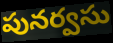
పునర్వసు